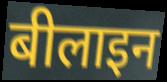
बीलाइन